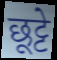
छूट्टे